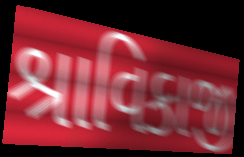
શ્રાવિકાજી